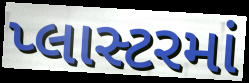
પ્લાસ્ટરમાં